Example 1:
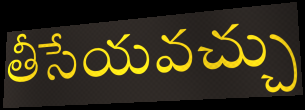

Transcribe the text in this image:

తీసేయవచ్చు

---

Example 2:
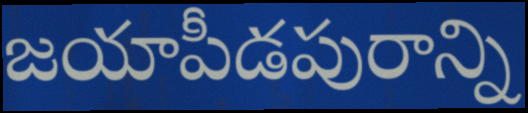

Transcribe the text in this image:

జయాపీడపురాన్ని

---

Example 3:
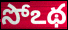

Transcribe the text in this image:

సోఽథ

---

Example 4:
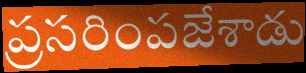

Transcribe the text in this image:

ప్రసరింపజేశాడు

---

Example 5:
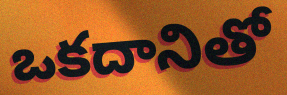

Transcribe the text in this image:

ఒకదానితో